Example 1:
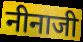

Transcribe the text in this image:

नीनाजी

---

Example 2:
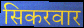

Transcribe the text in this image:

सिकरवार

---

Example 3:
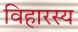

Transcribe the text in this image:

विहारस्य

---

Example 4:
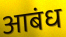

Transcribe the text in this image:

आबंध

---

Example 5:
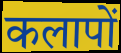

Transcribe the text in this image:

कलापों